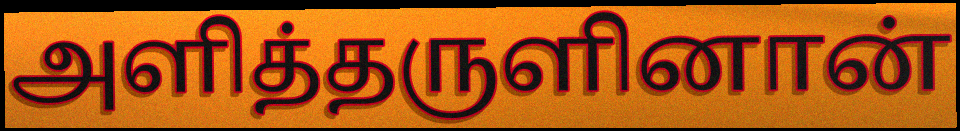
அளித்தருளினான்